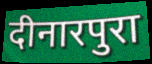
दीनारपुरा